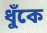
ধুঁকে